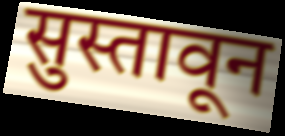
सुस्तावून